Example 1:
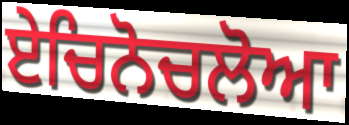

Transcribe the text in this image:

ਏਚਿਨੋਚਲੋਆ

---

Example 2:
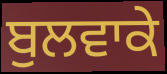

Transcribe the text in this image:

ਬੁਲਵਾਕੇ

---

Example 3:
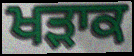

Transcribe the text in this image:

ਖੜਾਕ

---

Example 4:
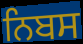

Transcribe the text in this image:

ਨਿਬਸ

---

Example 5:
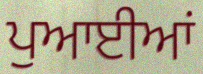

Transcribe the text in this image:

ਪੁਆਈਆਂ